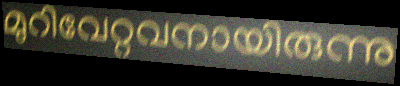
മുറിവേറ്റവനായിരുന്നു